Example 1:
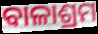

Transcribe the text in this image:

ବାଳାଶ୍ରମ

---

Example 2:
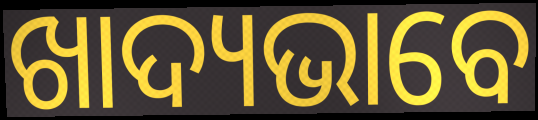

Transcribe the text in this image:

ଖାଦ୍ୟଭାବେ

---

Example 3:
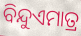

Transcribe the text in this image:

ବିନ୍ଦୁଏମାତ୍ର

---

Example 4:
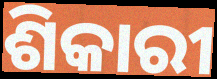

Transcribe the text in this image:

ଶିକାରୀ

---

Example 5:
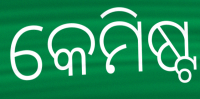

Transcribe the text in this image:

କେମିଷ୍ଟ